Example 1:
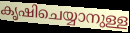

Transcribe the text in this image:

കൃഷിചെയ്യാനുള്ള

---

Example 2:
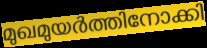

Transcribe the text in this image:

മുഖമുയർത്തിനോക്കി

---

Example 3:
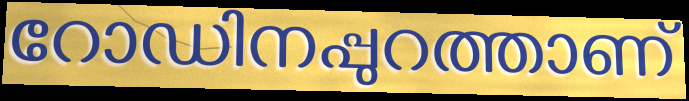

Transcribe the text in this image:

റോഡിനപ്പുറത്താണ്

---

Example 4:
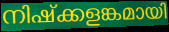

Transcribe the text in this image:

നിഷ്ക്കളങ്കമായി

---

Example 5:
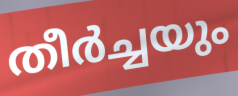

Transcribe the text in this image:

തീർച്ചയും